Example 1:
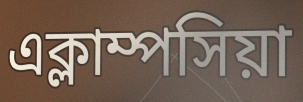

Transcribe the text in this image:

এক্লাম্পসিয়া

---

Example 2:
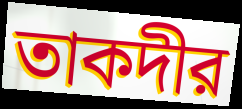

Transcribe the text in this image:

তাকদীর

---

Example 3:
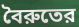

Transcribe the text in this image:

বৈরুতের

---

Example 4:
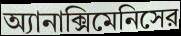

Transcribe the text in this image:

অ্যানাক্সিমেনিসের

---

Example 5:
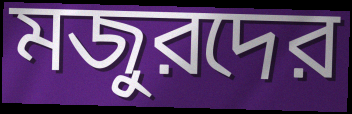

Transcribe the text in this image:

মজুরদের